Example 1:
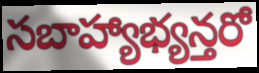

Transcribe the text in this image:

సబాహ్యాభ్యన్తరో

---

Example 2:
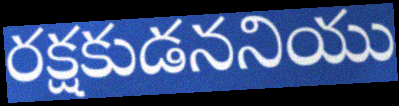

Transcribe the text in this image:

రక్షకుడననియు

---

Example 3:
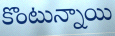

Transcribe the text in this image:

కొంటున్నాయి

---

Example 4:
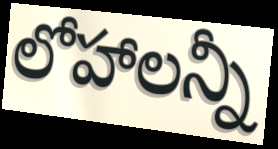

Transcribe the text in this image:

లోహాలన్నీ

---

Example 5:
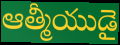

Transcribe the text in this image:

ఆత్మీయుడై